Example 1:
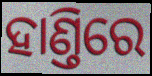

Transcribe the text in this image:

ହାଣ୍ତିରେ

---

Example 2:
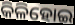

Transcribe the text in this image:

କିଳିହୋଇ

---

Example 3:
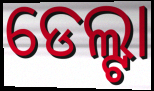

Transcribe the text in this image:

ଡେଲ୍ଟା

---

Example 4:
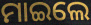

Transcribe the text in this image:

ମାଇଲେ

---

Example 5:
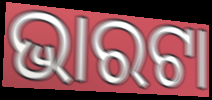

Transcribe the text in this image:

ଭାରଟା